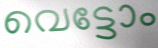
വെട്ടോം